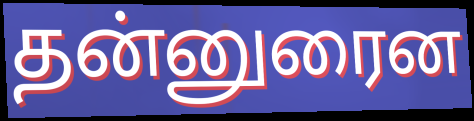
தன்னுரைன